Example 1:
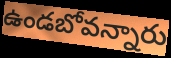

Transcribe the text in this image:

ఉండబోవన్నారు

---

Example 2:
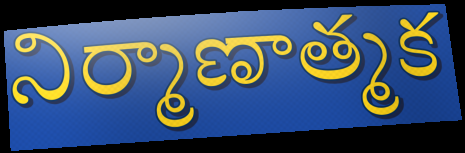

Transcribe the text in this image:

నిర్మాణాత్మక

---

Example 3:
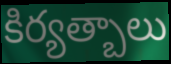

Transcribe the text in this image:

కిర్యత్బాలు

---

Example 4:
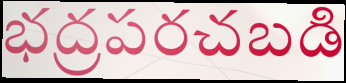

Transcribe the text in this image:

భద్రపరచబడి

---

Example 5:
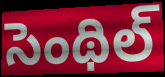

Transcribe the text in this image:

సెంథిల్